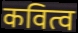
कवित्व